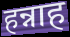
हन्नाह